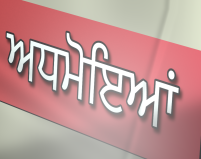
ਅਧਮੋਇਆਂ